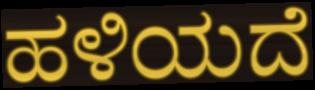
ಹಳಿಯದೆ